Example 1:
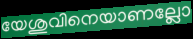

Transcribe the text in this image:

യേശുവിനെയാണല്ലോ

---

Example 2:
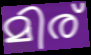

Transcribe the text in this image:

മിര്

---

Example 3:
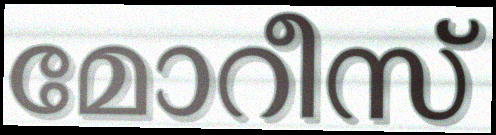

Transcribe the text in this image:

മോറീസ്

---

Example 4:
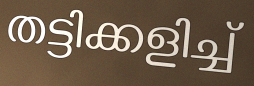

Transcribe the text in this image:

തട്ടിക്കളിച്ച്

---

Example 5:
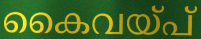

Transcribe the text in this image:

കൈവയ്പ്